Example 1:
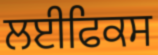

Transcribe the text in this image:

ਲਈਫਿਕਸ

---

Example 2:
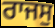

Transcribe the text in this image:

ਰਾਜਸੁ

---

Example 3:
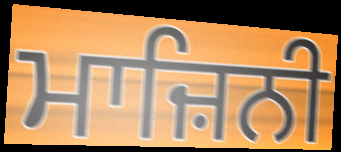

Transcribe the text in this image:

ਮਾਜ਼ਿਨੀ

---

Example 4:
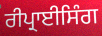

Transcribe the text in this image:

ਰੀਪ੍ਰਾਈਸਿੰਗ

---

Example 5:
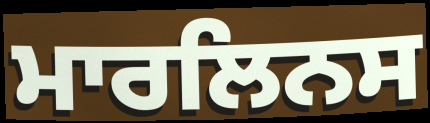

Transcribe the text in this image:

ਮਾਰਲਿਨਸ